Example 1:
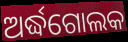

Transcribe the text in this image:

ଅର୍ଦ୍ଧଗୋଲକ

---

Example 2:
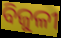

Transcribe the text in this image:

ବିଜୁଳୀ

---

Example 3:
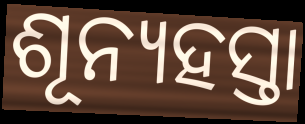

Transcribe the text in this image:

ଶୂନ୍ୟହସ୍ତା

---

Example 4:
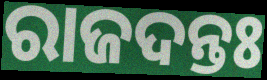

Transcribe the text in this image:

ରାଜଦନ୍ତଃ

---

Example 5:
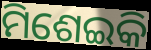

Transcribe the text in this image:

ମିଶେଇକି